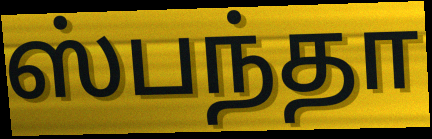
ஸ்பந்தா